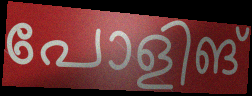
പോളിങ്